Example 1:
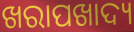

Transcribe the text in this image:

ଖରାପଖାଦ୍ୟ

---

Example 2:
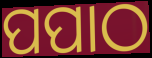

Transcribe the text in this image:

ପପାଠ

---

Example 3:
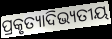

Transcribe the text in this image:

ପ୍ରକୃତ୍ୟାଦିଭ୍ୟତୀୟ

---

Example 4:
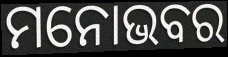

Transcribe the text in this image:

ମନୋଭବର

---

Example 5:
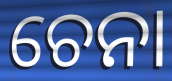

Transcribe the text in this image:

ଚେନା